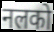
नलको